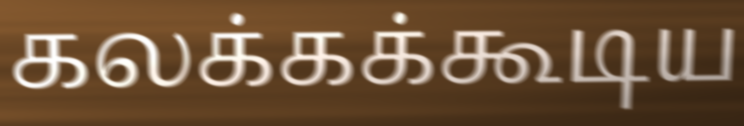
கலக்கக்கூடிய